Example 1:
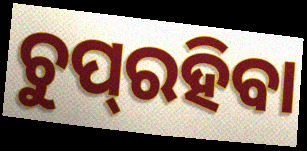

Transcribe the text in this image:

ଚୁପ୍‌ରହିବା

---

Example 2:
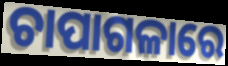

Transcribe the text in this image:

ଚାପାଗଳାରେ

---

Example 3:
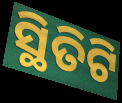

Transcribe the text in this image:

ସ୍ଥିତିଟି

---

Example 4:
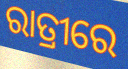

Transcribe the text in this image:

ରାତ୍ରୀରେ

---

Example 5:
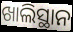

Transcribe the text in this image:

ଖାଲିସ୍ଥାନ